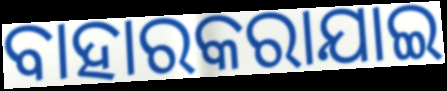
ବାହାରକରାଯାଇ